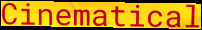
Cinematical